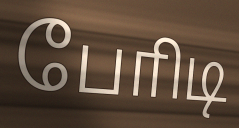
பேரிடி